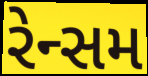
રેન્સમ